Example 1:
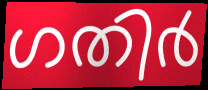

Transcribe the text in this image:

ഗതിർ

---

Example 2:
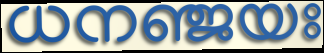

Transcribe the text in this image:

ധനഞ്ജയഃ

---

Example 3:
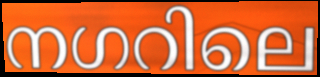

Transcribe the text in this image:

നഗറിലെ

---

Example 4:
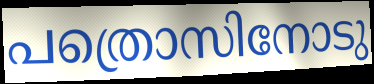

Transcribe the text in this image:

പത്രൊസിനോടു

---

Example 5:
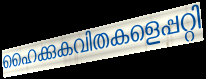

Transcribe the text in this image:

ഹൈക്കുകവിതകളെപ്പറ്റി